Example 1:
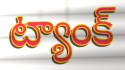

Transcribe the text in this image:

ట్యాంక్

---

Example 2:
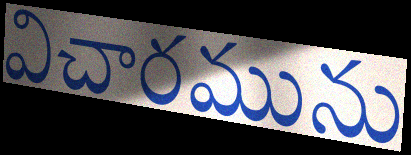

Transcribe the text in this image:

విచారమును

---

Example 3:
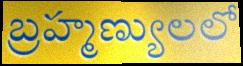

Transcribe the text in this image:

బ్రహ్మణ్యులలో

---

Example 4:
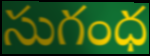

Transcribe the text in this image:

సుగంధ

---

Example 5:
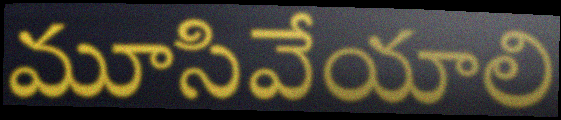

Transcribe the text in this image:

మూసివేయాలి